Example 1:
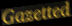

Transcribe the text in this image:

Gazetted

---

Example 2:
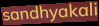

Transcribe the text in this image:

sandhyakali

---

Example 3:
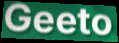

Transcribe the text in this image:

Geeto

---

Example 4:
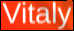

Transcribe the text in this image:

Vitaly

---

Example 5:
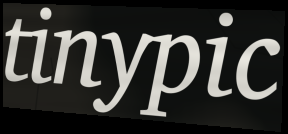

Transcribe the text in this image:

tinypic